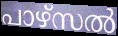
പാഴ്സൽ